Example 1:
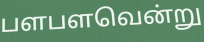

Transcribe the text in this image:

பளபளவென்று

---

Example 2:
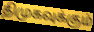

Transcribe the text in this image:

திமுகவுக்கும்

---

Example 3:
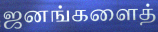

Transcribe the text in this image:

ஜனங்களைத்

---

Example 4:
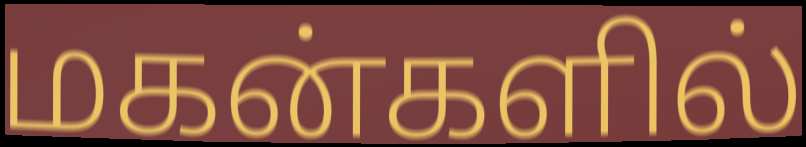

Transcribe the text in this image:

மகன்களில்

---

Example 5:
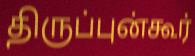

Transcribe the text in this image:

திருப்புன்கூர்